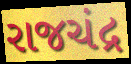
રાજચંદ્ર